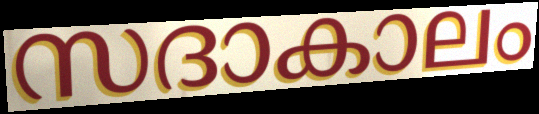
സദാകാലം